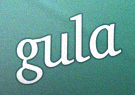
gula